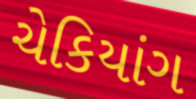
ચેકિયાંગ